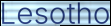
Lesotho